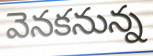
వెనకనున్న